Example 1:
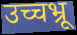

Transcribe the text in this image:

उच्चभ्रू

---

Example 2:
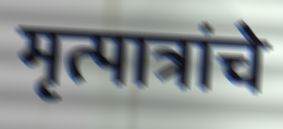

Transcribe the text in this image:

मृत्पात्रांचे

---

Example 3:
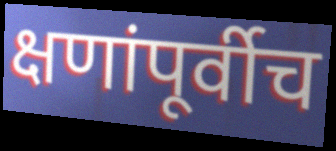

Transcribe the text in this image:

क्षणांपूर्वीच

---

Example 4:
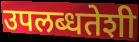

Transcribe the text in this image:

उपलब्धतेशी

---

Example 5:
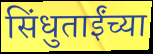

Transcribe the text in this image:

सिंधुताईंच्या